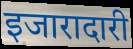
इजारादारी